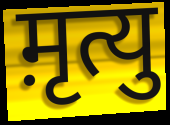
म़ृत्यु